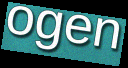
ogen